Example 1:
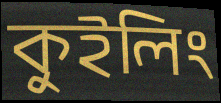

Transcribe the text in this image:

কুইলিং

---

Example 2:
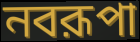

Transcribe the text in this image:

নবরূপা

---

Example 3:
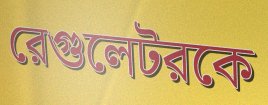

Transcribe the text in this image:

রেগুলেটরকে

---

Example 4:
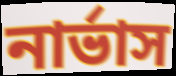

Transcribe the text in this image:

নার্ভাস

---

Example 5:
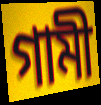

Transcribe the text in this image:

গামী